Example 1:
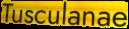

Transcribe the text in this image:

Tusculanae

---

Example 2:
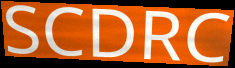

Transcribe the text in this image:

SCDRC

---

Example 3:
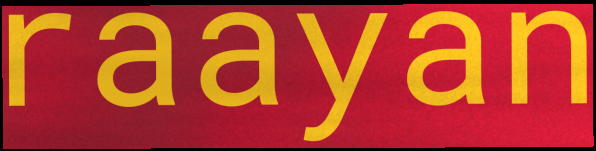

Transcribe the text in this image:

raayan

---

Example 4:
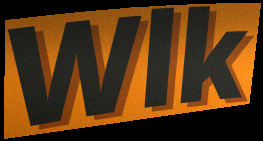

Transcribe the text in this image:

Wlk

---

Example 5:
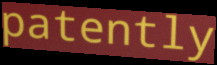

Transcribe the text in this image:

patently